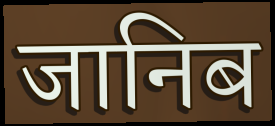
जानिब